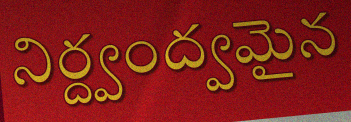
నిర్ద్వంద్వమైన